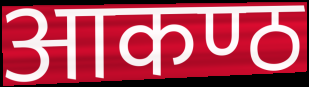
आकण्ठ